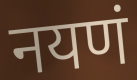
नयणं